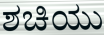
ಶಚಿಯು